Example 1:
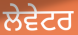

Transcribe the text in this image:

ਲੇਵੇਟਰ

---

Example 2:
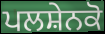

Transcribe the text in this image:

ਪਲਸ਼ੇਨਕੋ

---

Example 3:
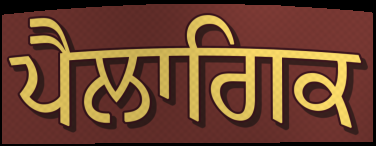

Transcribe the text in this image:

ਪੈਲਾਗਿਕ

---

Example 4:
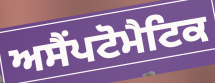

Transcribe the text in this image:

ਅਸੈਂਪਟੋਮੈਟਿਕ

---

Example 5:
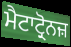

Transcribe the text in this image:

ਮੈਟਾਟ੍ਰੋਨਜ਼